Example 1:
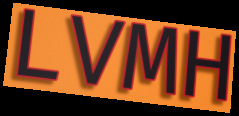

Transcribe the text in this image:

LVMH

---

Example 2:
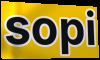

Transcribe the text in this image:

sopi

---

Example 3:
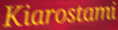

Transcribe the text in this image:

Kiarostami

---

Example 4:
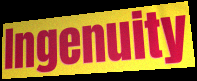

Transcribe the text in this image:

Ingenuity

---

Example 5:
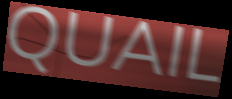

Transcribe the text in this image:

QUAIL